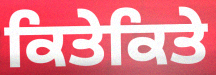
ਕਿਤੇਕਿਤੇ